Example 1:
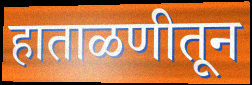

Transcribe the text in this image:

हाताळणीतून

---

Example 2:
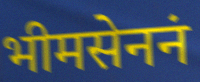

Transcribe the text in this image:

भीमसेननं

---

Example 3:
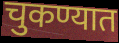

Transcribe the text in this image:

चुकण्यात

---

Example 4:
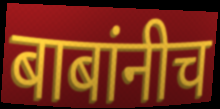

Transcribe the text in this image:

बाबांनीच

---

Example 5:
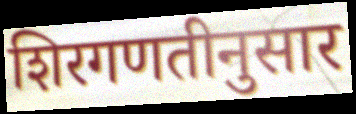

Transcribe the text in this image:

शिरगणतीनुसार